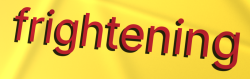
frightening